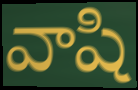
వాషి